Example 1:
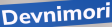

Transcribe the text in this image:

Devnimori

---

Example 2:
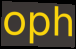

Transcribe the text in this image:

oph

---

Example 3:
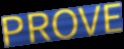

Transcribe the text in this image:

PROVE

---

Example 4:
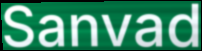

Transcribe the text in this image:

Sanvad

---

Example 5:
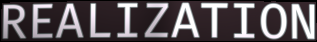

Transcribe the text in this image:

REALIZATION